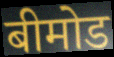
बीमोड